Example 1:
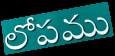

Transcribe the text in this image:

లోపము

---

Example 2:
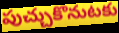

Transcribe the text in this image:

పుచ్చుకొనుటకు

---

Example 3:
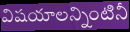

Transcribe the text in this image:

విషయాలన్నింటినీ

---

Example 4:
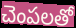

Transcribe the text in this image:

చెంపలతో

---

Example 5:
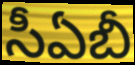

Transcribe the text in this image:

సీఏబీ